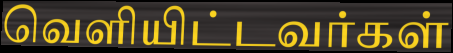
வெளியிட்டவர்கள்